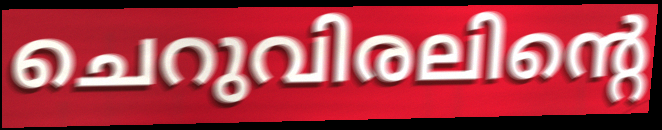
ചെറുവിരലിന്റെ